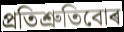
প্ৰতিশ্ৰুতিবোৰ